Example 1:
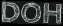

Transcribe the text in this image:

DOH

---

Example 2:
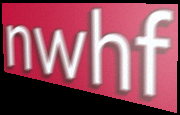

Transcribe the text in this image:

nwhf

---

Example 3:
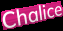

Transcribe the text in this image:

Chalice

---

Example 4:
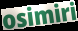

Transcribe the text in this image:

osimiri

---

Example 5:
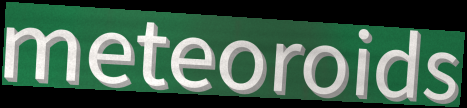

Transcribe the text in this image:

meteoroids